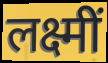
लक्ष्मीं